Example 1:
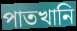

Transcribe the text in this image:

পাতখানি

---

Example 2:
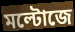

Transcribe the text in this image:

মল্টোজে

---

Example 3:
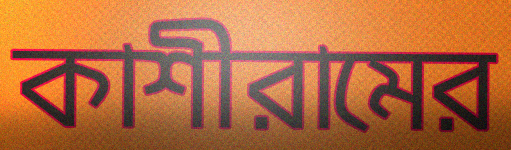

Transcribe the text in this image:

কাশীরামের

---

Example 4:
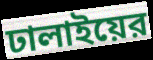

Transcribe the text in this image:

ঢালাইয়ের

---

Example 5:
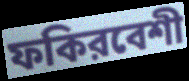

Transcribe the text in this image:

ফকিরবেশী